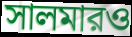
সালমারও